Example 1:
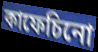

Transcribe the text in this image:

কাফেচিনো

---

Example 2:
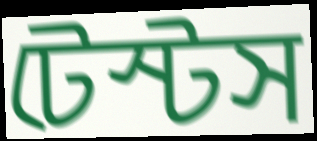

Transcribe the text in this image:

টেস্টস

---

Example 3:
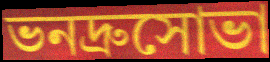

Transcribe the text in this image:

ভনদ্রুসোভা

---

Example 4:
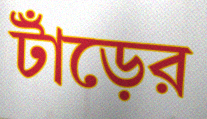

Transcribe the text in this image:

টাঁড়ের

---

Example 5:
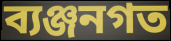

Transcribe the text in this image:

ব্যঞ্জনগত